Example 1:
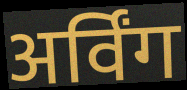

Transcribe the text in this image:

अर्विंग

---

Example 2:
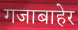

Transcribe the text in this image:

गजाबाहेर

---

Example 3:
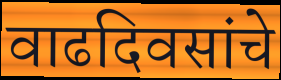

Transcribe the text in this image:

वाढदिवसांचे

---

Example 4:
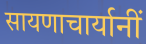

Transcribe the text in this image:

सायणाचार्यानीं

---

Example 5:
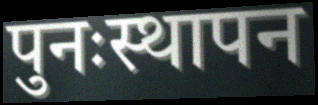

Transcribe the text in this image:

पुनःस्थापन